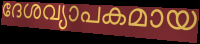
ദേശവ്യാപകമായ